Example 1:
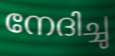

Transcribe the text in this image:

നേദിച്ചു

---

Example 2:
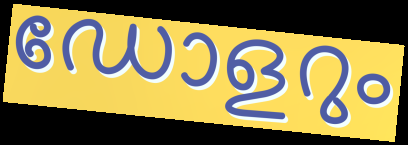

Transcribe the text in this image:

ഡോളറും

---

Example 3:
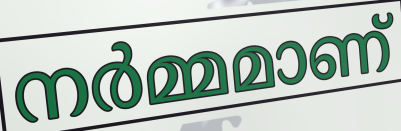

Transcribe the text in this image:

നർമ്മമാണ്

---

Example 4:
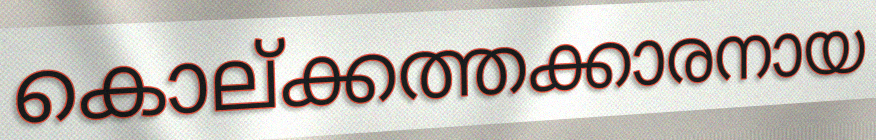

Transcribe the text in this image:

കൊല്ക്കത്തക്കാരനായ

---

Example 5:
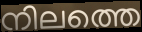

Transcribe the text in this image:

നിലത്തെ